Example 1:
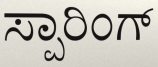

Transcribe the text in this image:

ಸ್ಪಾರಿಂಗ್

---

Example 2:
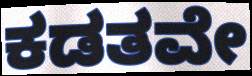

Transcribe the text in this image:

ಕಡತವೇ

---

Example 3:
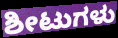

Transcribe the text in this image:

ಶೀಟುಗಳು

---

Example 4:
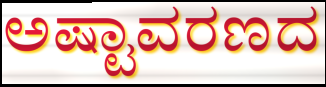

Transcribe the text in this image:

ಅಷ್ಟಾವರಣದ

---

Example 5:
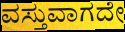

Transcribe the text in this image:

ವಸ್ತುವಾಗದೇ